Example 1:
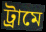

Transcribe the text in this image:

ট্রামে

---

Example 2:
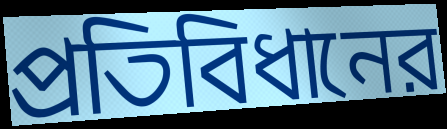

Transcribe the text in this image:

প্রতিবিধানের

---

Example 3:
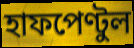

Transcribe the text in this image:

হাফপেণ্টুল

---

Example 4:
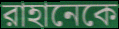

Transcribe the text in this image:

রাহানেকে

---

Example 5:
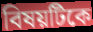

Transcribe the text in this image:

বিষয়টিকে